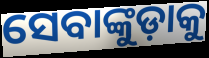
ସେବାଙ୍କୁଡ଼ାକୁ